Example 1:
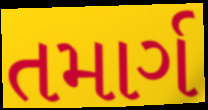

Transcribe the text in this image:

તમાર્ગ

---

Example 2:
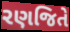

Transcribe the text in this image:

રણજિતે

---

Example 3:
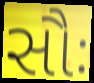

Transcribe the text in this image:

સૌઃ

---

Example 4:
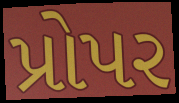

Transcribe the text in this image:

પ્રોપર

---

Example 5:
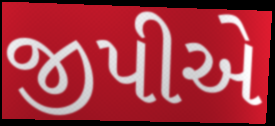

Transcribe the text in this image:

જીપીએ